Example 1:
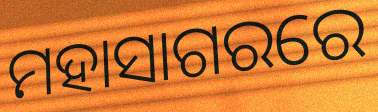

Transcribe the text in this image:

ମହାସାଗରରେ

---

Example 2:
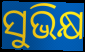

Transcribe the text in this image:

ସୁଭିକ୍ଷ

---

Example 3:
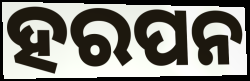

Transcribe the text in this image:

ହରପନ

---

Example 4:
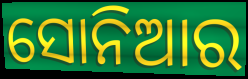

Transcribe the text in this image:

ସୋନିଆର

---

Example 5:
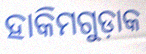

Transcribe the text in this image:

ହାକିମଗୁଡ଼ାକ